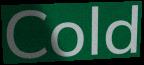
Cold